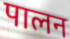
पालन